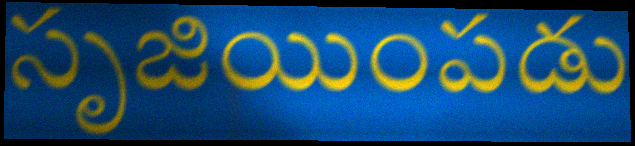
సృజియింపడు